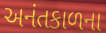
અનંતકાળના